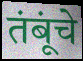
तंबूंचे